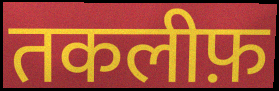
तकलीफ़